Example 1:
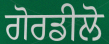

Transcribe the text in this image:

ਗੋਰਡੀਲੋ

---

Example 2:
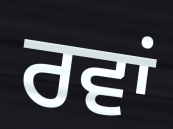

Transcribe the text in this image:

ਰਵਾਂ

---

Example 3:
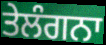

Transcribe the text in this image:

ਤੇਲੰਗਨਾ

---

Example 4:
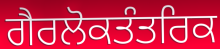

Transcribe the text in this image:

ਗੈਰਲੋਕਤੰਤਰਿਕ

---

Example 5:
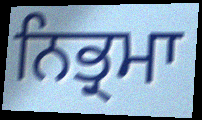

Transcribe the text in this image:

ਨਿਭ੍ਰਮਾ